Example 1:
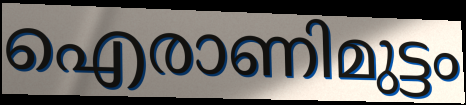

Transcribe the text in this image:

ഐരാണിമുട്ടം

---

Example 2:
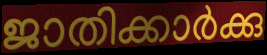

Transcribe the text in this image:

ജാതിക്കാർക്കു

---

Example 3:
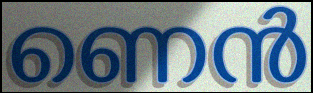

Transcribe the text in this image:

ണെൻ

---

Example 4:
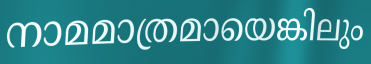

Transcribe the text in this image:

നാമമാത്രമായെങ്കിലും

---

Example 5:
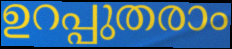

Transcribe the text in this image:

ഉറപ്പുതരാം